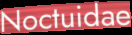
Noctuidae